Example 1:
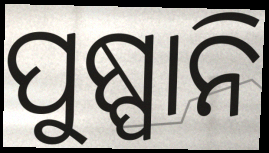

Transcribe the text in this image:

ପୁଷ୍ପାନି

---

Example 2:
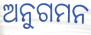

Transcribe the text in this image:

ଅନୁଗମନ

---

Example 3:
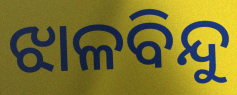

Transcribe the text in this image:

ଝାଳବିନ୍ଦୁ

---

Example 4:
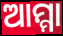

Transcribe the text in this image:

ଆମ୍ମା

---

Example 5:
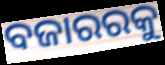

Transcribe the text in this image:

ବଜାରରକୁ